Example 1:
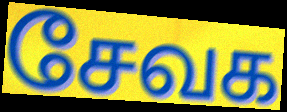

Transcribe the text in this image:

சேவக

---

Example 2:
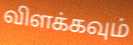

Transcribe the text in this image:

விளக்கவும்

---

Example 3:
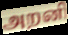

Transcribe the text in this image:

அறனி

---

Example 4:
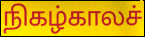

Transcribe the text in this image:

நிகழ்காலச்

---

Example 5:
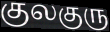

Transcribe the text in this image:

குலகுரு